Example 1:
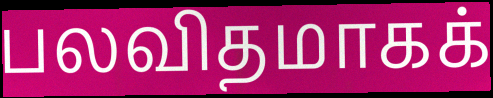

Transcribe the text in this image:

பலவிதமாகக்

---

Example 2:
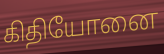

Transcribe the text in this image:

கிதியோனை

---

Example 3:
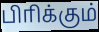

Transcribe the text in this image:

பிரிக்கும்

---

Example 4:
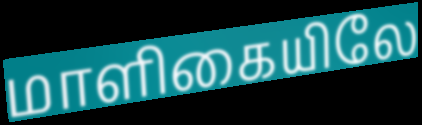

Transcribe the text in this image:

மாளிகையிலே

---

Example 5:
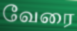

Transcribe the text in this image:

வேரை